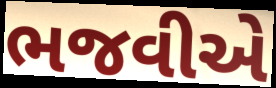
ભજવીએ